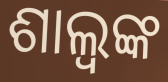
ଶାଲ୍ୱଙ୍କ